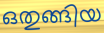
ഒതുങ്ങിയ